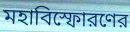
মহাবিস্ফোরণের